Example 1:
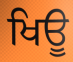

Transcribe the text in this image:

ਖਿਊ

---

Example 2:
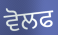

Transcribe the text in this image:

ਵੋਲਫ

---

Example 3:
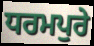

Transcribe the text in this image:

ਧਰਮਪੁਰੇ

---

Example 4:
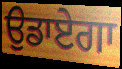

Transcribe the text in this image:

ਉਡਾਏਗਾ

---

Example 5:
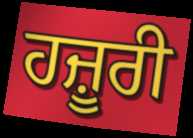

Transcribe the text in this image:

ਹਜ਼ੂਰੀ